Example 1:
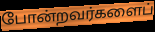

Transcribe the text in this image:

போன்றவர்களைப்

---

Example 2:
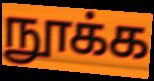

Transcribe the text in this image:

நூக்க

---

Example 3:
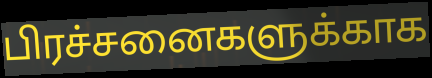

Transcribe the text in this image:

பிரச்சனைகளுக்காக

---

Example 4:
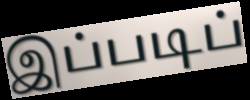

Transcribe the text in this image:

இப்படிப்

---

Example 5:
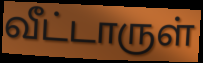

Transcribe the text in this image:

வீட்டாருள்